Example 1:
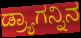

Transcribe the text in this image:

ಡ್ರ್ಯಾಗನ್ನಿನ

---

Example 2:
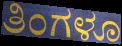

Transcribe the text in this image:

ತಿಂಗಳೂ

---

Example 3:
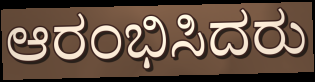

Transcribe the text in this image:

ಆರಂಭಿಸಿದರು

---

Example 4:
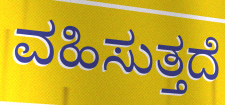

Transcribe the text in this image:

ವಹಿಸುತ್ತದೆ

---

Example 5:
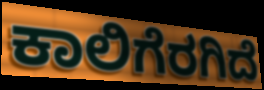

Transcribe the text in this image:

ಕಾಲಿಗೆರಗಿದೆ